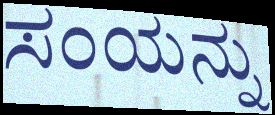
ಸಂಯನ್ನು